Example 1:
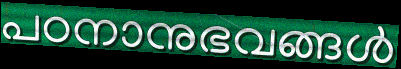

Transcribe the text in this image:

പഠനാനുഭവങ്ങൾ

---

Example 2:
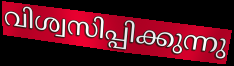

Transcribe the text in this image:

വിശ്വസിപ്പിക്കുന്നു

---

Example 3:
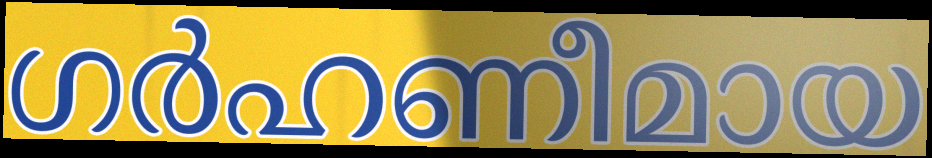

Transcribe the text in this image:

ഗർഹണീമായ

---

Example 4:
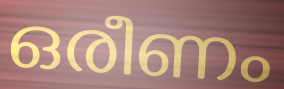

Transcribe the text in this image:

ഒരീണം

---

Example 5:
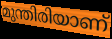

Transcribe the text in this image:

മുന്തിരിയാണ്